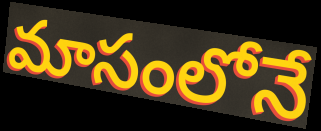
మాసంలోనే